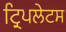
ਟ੍ਰਿਪਲੇਟਸ